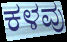
ಕಳವು